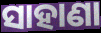
ସାହାଣା